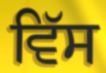
ਵਿੱਸ